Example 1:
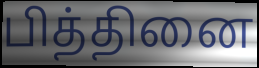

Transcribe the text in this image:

பித்தினை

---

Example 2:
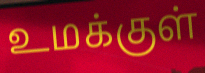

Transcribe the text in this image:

உமக்குள்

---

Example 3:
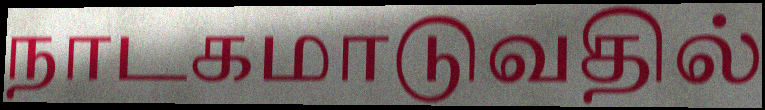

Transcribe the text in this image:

நாடகமாடுவதில்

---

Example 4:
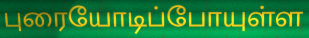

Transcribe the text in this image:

புரையோடிப்போயுள்ள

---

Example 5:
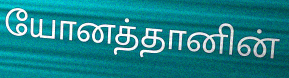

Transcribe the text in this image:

யோனத்தானின்